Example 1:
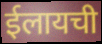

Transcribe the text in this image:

ईलायची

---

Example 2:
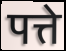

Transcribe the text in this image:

पत्ते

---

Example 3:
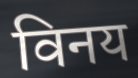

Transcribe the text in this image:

विनय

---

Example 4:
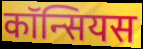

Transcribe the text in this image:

कॉन्सियस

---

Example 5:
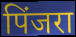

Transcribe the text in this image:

पिंजरा